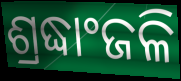
ଶ୍ରଦ୍ଧାଂଜଳି